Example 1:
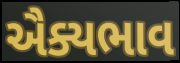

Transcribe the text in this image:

ઐક્યભાવ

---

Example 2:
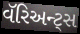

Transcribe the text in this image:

વૅરિઅન્ટ્સ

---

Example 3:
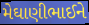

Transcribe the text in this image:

મેઘાણીભાઈને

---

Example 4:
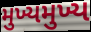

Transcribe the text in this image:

મુખ્યમુખ્ય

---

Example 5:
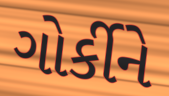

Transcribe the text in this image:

ગોર્કીને